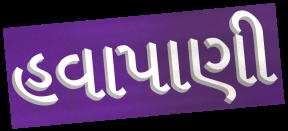
હવાપાણી